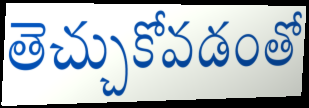
తెచ్చుకోవడంతో